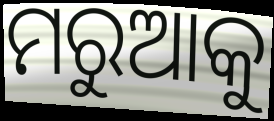
ମରୁଆକୁ